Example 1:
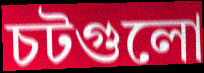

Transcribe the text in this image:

চটগুলো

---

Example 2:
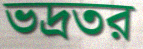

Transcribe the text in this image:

ভদ্রতর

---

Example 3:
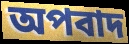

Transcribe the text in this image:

অপবাদ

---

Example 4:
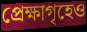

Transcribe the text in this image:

প্রেক্ষাগৃহেও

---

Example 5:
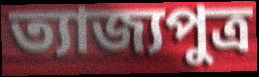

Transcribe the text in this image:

ত্যাজ্যপুত্র